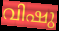
വിഷു